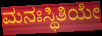
ಮನಃಸ್ಥಿತಿಯೇ